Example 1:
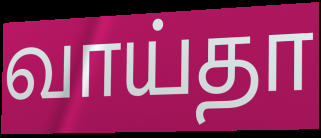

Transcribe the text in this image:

வாய்தா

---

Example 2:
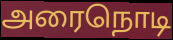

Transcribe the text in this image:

அரைநொடி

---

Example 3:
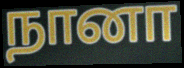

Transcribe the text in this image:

நானா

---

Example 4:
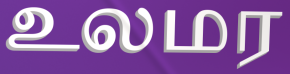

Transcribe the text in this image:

உலமர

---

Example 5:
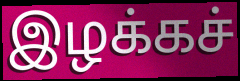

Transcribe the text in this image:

இழக்கச்